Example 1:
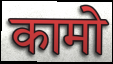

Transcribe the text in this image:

कामो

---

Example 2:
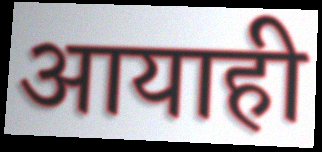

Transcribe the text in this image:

आयाही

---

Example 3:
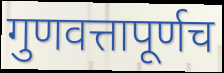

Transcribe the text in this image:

गुणवत्तापूर्णच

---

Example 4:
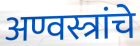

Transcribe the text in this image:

अण्वस्त्रांचे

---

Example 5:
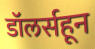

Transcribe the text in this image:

डॉलर्सहून